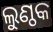
ଲୁଣ୍ଠକ